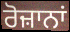
ਰੋਜ਼ਾਨਾਂ